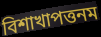
বিশাখাপত্তনম